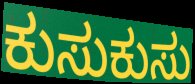
ಕುಸುಕುಸು